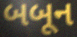
બબૂન